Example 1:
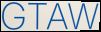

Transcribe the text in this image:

GTAW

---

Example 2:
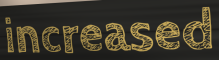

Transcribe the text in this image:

increased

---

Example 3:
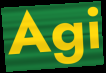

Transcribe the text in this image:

Agi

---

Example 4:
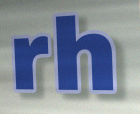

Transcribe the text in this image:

rh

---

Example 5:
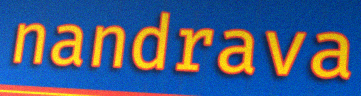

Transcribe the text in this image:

nandrava